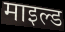
माइल्ड